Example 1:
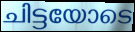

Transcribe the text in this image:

ചിട്ടയോടെ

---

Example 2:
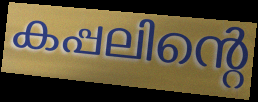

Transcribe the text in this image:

കപ്പലിന്റെ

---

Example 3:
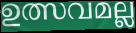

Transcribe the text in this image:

ഉത്സവമല്ല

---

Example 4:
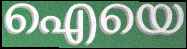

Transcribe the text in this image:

ഐയെ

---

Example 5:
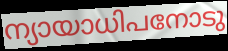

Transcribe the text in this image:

ന്യായാധിപനോടു